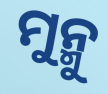
ମୁନ୍ମୁ